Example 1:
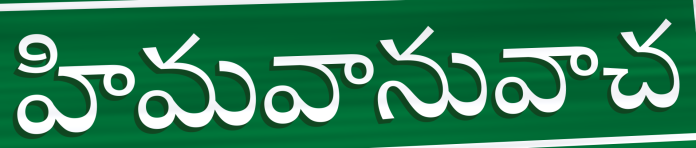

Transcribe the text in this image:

హిమవానువాచ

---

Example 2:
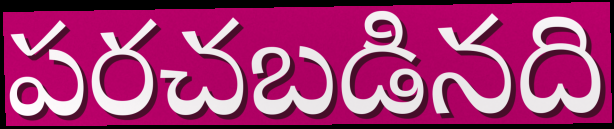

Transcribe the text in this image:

పరచబడినది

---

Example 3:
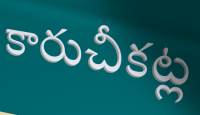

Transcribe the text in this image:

కారుచీకట్ల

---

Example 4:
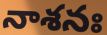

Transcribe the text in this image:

నాశనః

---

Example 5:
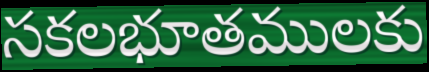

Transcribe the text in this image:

సకలభూతములకు